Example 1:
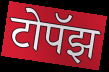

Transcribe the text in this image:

टोपॅझ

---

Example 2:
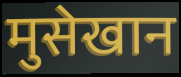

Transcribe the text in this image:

मुसेखान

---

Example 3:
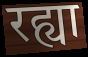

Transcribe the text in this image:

रह्या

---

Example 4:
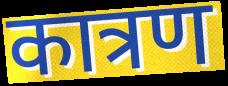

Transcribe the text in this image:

कात्रण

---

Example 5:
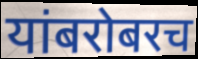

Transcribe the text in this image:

यांबरोबरच